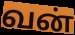
வன்